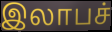
இலாபச்